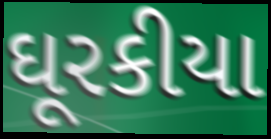
ઘૂરકીયા